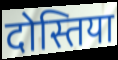
दोस्तिया